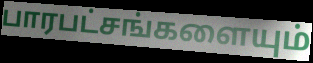
பாரபட்சங்களையும்